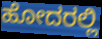
ಹೋದರಲ್ಲಿ